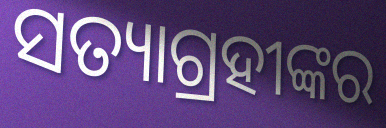
ସତ୍ୟାଗ୍ରହୀଙ୍କର